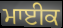
ਮਾਈਕ